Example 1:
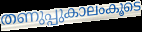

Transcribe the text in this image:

തണുപ്പുകാലംകൂടെ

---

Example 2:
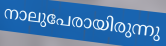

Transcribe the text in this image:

നാലുപേരായിരുന്നു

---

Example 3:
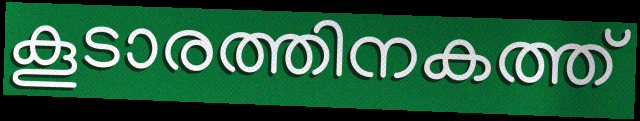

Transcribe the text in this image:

കൂടാരത്തിനകത്ത്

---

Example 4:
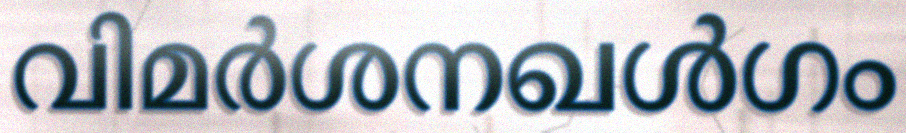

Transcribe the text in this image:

വിമർശനഖൾഗം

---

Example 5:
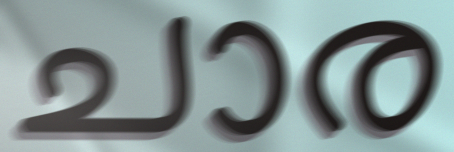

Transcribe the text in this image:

ചാര